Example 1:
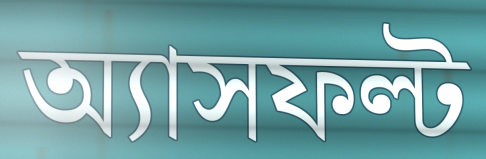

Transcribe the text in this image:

অ্যাসফল্ট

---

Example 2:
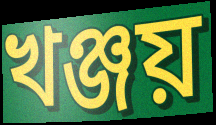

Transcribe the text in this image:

খঞ্জয়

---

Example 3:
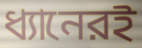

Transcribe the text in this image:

ধ্যানেরই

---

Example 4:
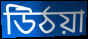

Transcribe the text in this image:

উিঠয়া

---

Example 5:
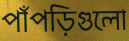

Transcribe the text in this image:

পাঁপড়িগুলো